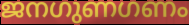
ജനഗുണഗണം